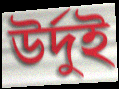
উর্দুই